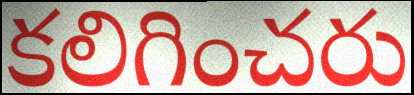
కలిగించరు